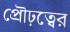
প্রৌঢ়ত্বের